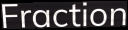
Fraction